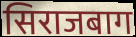
सिराजबाग